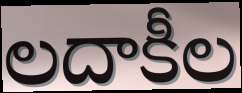
లదాకీల